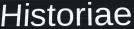
Historiae